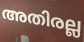
അതിരല്ല